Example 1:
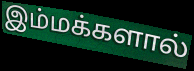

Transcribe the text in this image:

இம்மக்களால்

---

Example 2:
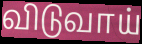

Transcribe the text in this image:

விடுவாய்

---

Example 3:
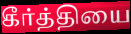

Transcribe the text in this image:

கீர்த்தியை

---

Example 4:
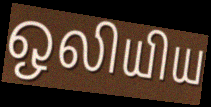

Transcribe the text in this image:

ஒலியிய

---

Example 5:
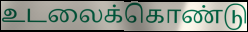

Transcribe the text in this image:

உடலைக்கொண்டு